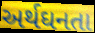
અર્થઘનતા